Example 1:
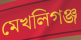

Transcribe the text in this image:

মেখলিগঞ্জ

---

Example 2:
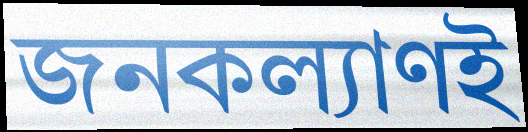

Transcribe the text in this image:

জনকল্যাণই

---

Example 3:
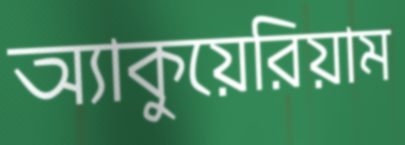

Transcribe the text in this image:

অ্যাকুয়েরিয়াম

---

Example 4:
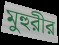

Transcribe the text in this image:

মুহুরীর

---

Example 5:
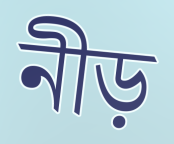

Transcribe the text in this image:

নীড়